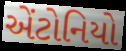
એંટોનિયો